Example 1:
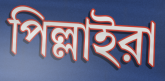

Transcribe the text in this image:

পিল্লাইরা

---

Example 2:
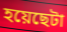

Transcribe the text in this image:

হয়েছেটা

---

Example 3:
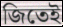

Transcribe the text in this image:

জিতেই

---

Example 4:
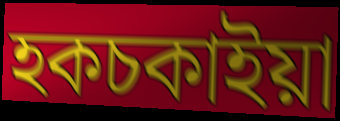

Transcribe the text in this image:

হকচকাইয়া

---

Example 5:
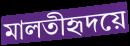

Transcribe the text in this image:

মালতীহৃদয়ে